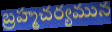
బ్రహ్మచర్యమున